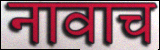
नावाच